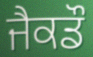
ਜੈਕਡੌ